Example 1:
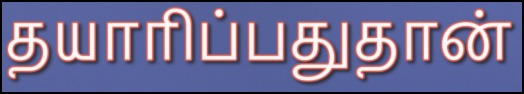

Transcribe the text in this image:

தயாரிப்பதுதான்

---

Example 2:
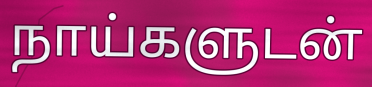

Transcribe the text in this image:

நாய்களுடன்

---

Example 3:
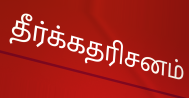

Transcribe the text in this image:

தீர்க்கதரிசனம்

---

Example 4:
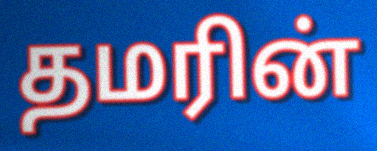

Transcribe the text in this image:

தமரின்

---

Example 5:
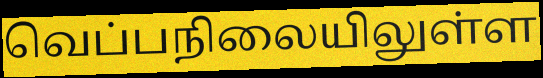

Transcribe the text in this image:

வெப்பநிலையிலுள்ள